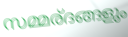
സമ്മര്ദങ്ങളും